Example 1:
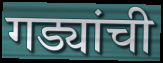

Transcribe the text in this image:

गड्यांची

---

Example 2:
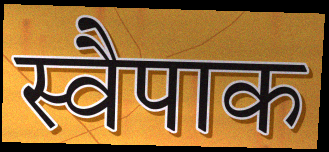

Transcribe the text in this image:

स्वैपाक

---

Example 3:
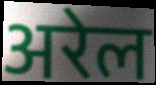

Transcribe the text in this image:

अरेल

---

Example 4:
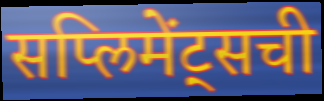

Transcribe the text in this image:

सप्लिमेंट्सची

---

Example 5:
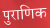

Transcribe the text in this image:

पुराणिक